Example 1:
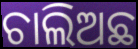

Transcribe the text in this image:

ଚାଲିଅଛ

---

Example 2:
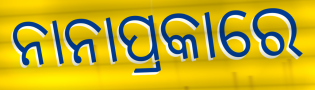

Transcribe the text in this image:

ନାନାପ୍ରକାରେ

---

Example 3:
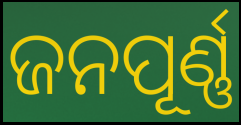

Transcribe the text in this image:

ଜନପୂର୍ଣ୍ଣ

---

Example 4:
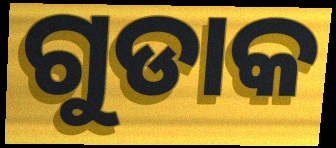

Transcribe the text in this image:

ଗୁଡାକ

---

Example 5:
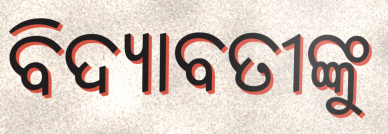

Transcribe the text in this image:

ବିଦ୍ୟାବତୀଙ୍କୁ